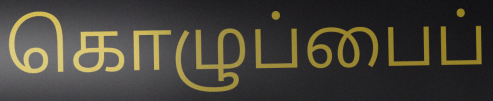
கொழுப்பைப்